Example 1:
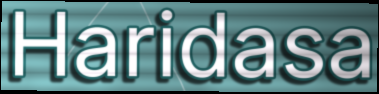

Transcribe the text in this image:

Haridasa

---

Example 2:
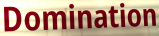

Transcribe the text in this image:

Domination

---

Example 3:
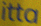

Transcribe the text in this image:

itta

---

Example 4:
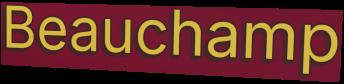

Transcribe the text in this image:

Beauchamp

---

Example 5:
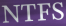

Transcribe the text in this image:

NTFS